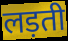
लड़ती